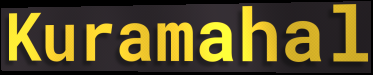
Kuramahal